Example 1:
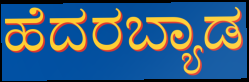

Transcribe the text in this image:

ಹೆದರಬ್ಯಾಡ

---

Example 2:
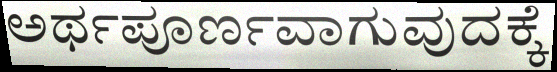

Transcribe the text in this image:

ಅರ್ಥಪೂರ್ಣವಾಗುವುದಕ್ಕೆ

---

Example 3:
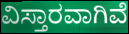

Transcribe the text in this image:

ವಿಸ್ತಾರವಾಗಿವೆ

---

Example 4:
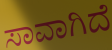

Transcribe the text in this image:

ಸಾವಾಗಿದೆ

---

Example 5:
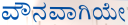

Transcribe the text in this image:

ವೌನವಾಗಿಯೇ